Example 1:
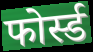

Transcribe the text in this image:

फोर्स्ड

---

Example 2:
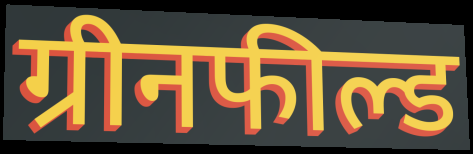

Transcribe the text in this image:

ग्रीनफील्ड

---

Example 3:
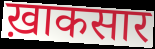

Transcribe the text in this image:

ख़ाकसार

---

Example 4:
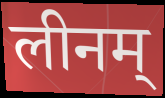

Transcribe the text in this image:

लीनम्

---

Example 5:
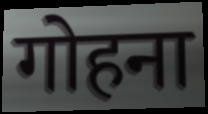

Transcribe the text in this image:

गोहना